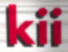
kii